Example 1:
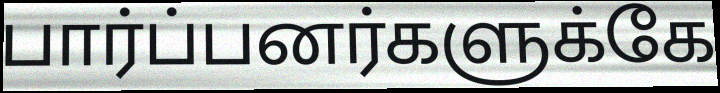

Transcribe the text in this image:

பார்ப்பனர்களுக்கே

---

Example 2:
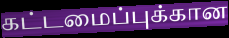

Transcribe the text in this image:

கட்டமைப்புக்கான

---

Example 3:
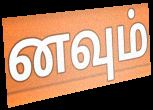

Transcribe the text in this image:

னவும்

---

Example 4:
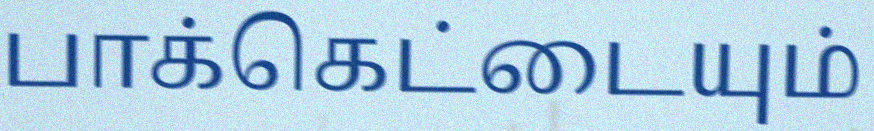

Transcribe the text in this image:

பாக்கெட்டையும்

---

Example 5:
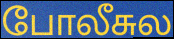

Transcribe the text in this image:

போலீசுல